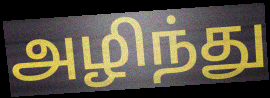
அழிந்து